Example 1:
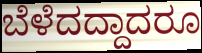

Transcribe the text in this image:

ಬೆಳೆದದ್ದಾದರೂ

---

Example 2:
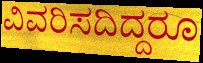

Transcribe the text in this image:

ವಿವರಿಸದಿದ್ದರೂ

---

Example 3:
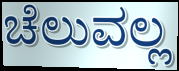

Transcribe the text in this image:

ಚೆಲುವಲ್ಲ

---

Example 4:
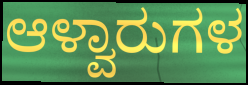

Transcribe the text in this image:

ಆಳ್ವಾರುಗಳ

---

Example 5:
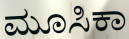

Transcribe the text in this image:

ಮೂಸಿಕಾ